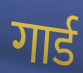
गार्ड